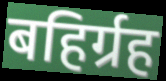
बहिर्ग्रह